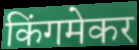
किंगमेकर